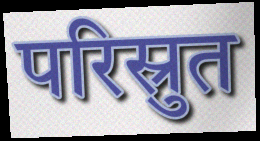
परिस्रुत